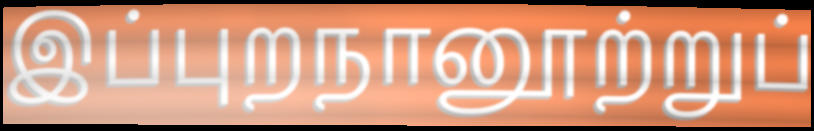
இப்புறநானூற்றுப்